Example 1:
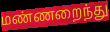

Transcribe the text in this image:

மண்ணறைந்து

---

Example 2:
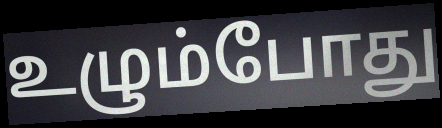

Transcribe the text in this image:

உழும்போது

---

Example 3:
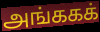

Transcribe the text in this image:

அங்ககக்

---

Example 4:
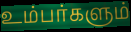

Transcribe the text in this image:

உம்பர்களும்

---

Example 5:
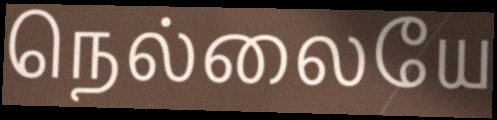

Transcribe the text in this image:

நெல்லையே